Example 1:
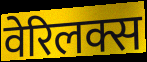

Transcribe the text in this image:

वेरिलक्स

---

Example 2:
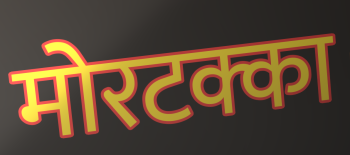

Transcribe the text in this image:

मोरटक्का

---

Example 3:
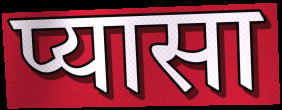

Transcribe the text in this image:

प्यासा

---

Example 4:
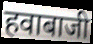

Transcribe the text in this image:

हवाबाजी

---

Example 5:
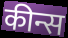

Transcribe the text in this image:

कीन्स